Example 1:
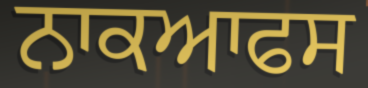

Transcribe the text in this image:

ਨਾਕਆਫਸ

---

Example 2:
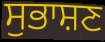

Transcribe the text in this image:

ਸੁਭਾਸ਼ਣ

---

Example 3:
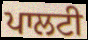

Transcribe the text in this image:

ਪਾਲਟੀ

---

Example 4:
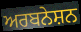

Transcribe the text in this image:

ਅਰਬਨੇਸ਼ਨ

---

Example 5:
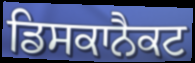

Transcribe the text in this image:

ਡਿਸਕਾਨੈਕਟ